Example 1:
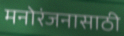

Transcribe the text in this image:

मनोरंजनासाठी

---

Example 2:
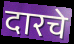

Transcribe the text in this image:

दारचे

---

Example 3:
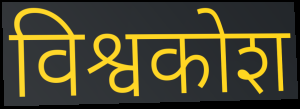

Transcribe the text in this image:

विश्वकोश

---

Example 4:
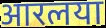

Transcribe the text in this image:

आरलया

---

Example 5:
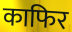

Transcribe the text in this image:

काफिर